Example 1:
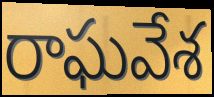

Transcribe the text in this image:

రాఘవేశ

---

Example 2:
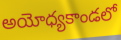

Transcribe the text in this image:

అయోధ్యకాండలో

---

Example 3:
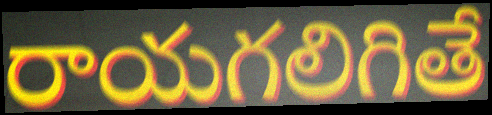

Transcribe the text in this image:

రాయగలిగితే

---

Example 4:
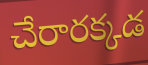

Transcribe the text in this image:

చేరారక్కడ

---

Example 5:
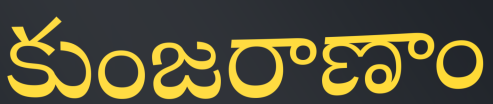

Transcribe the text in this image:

కుంజరాణాం